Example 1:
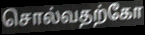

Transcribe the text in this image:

சொல்வதற்கோ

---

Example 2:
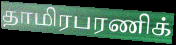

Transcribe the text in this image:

தாமிரபரணிக்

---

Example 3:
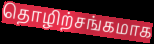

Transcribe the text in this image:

தொழிற்சங்கமாக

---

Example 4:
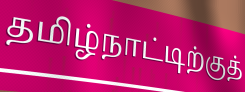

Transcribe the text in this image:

தமிழ்நாட்டிற்குத்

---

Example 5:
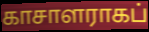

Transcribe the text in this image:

காசாளராகப்